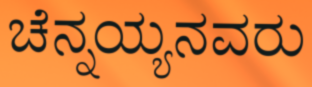
ಚೆನ್ನಯ್ಯನವರು